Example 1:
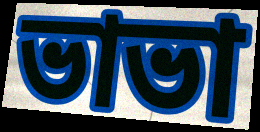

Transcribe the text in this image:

ভাভা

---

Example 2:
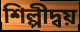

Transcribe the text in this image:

শিল্পীদ্বয়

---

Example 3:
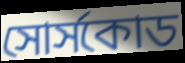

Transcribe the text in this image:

সোর্সকোড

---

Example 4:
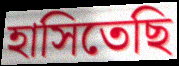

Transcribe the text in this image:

হাসিতেছি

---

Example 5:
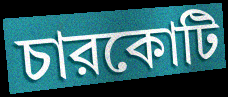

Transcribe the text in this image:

চারকোটি